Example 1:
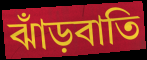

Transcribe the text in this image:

ঝাঁড়বাতি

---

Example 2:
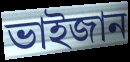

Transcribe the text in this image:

ভাইজান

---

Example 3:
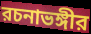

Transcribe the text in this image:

রচনাভঙ্গীর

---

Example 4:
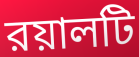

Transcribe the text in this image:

রয়ালটি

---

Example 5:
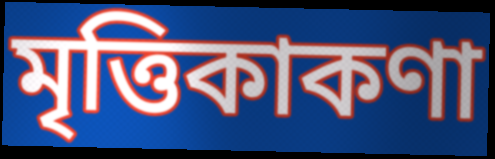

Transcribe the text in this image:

মৃত্তিকাকণা